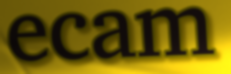
ecam